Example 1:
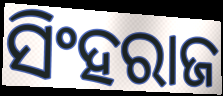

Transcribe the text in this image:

ସିଂହରାଜ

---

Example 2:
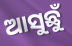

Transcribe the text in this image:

ଆସୁଛୁଁ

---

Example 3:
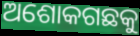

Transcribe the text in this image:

ଅଶୋକଗଛକୁ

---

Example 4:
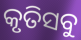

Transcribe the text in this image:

କୃତିସବୁ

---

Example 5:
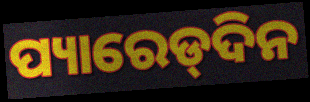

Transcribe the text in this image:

ପ୍ୟାରେଡ୍‌ଦିନ